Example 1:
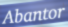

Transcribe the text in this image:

Abantor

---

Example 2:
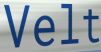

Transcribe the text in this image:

Velt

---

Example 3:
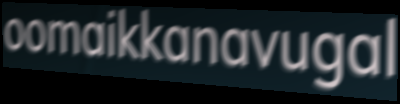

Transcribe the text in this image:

oomaikkanavugal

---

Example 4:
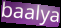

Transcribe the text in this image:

baalya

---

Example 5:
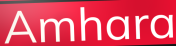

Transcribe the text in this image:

Amhara